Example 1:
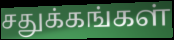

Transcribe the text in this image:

சதுக்கங்கள்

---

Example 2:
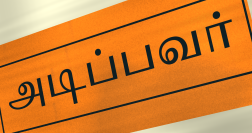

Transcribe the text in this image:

அடிப்பவர்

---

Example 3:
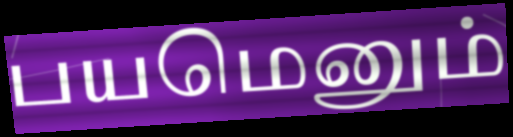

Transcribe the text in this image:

பயமெனும்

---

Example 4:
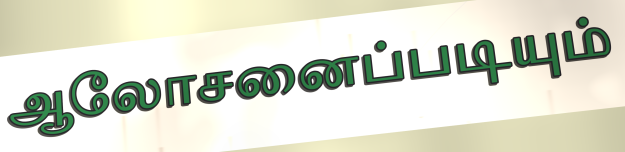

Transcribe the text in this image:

ஆலோசனைப்படியும்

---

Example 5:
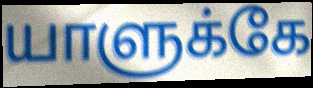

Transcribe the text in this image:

யாளுக்கே